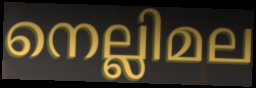
നെല്ലിമല